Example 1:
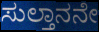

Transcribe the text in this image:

ಸುಲ್ತಾನನೇ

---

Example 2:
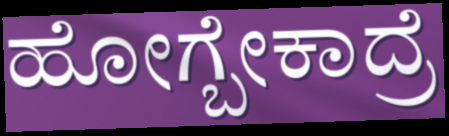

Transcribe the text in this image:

ಹೋಗ್ಬೇಕಾದ್ರೆ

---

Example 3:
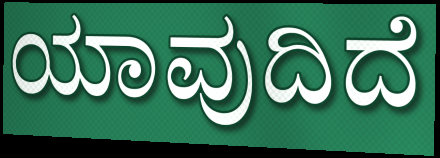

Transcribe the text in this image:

ಯಾವುದಿದೆ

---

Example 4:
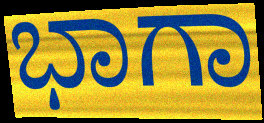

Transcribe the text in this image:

ಭಾಗಾ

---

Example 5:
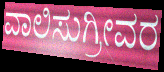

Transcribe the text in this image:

ವಾಲಿಸುಗ್ರೀವರ